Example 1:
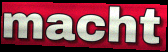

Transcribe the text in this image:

macht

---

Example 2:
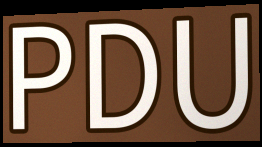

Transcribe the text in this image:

PDU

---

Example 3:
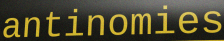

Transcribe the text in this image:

antinomies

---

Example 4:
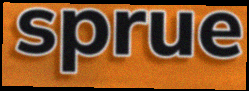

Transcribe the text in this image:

sprue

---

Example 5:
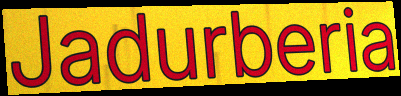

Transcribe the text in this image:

Jadurberia